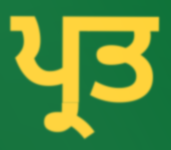
ਪ੍ਰਤ